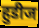
हुडीज